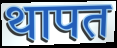
थापत